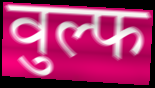
वुल्फ